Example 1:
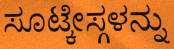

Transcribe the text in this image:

ಸೂಟ್ಕೇಸ್ಗಳನ್ನು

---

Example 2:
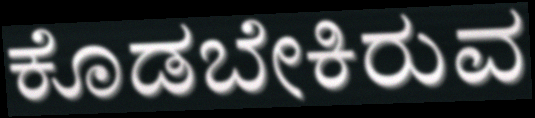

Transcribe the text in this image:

ಕೊಡಬೇಕಿರುವ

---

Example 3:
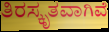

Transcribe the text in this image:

ತಿರಸ್ಕೃತವಾಗಿವೆ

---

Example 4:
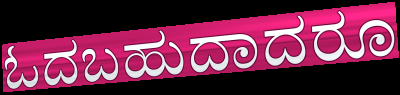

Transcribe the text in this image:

ಓದಬಹುದಾದರೂ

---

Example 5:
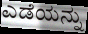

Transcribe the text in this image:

ಎಡೆಯನ್ನು